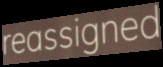
reassigned